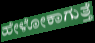
ಹೇಳೋಕಾಗುತ್ತೆ